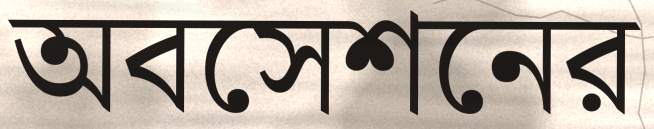
অবসেশনের